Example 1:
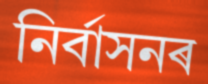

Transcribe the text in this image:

নিৰ্বাসনৰ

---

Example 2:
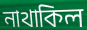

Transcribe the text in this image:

নাথাকিল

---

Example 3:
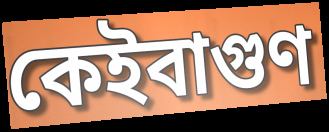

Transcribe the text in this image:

কেইবাগুণ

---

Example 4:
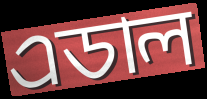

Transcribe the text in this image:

এডাল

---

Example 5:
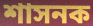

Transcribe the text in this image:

শাসনক